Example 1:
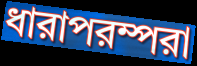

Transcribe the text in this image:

ধারাপরম্পরা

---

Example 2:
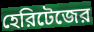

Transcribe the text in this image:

হেরিটেজের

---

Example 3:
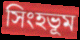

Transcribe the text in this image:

সিংহভূম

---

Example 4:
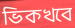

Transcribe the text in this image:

ভিকখবে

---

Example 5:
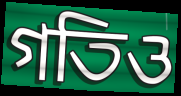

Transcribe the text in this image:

গতিও